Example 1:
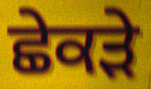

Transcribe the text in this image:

ਛੇਕੜੇ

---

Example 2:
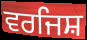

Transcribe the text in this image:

ਵਰਜਿਸ਼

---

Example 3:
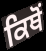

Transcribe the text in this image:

ਕਿਥੋਂ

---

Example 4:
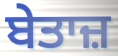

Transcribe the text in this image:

ਬੇਤਾਜ਼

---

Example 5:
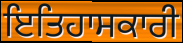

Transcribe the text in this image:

ਇਤਿਹਾਸਕਾਰੀ